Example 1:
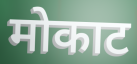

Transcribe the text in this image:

मोकाट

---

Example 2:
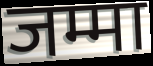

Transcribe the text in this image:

जम्मा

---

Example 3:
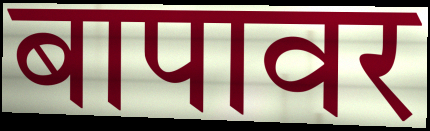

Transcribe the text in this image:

बापावर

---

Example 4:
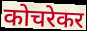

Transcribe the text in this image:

कोचरेकर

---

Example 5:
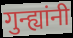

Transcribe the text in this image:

गुन्ह्यांनी